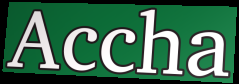
Accha